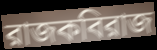
রাজকবিরাজ